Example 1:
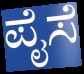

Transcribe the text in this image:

ಪೈಸೆ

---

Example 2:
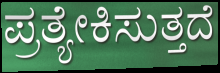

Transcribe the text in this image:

ಪ್ರತ್ಯೇಕಿಸುತ್ತದೆ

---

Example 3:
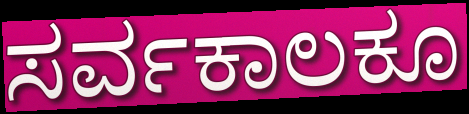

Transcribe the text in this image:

ಸರ್ವಕಾಲಕೂ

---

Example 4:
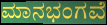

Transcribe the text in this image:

ಮಾನಭಂಗವೆ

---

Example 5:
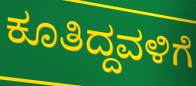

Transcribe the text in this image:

ಕೂತಿದ್ದವಳಿಗೆ